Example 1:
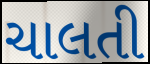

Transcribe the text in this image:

ચાલતી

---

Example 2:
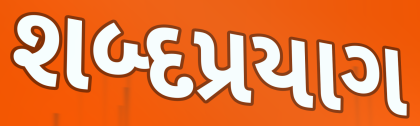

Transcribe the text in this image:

શબ્દપ્રયાગ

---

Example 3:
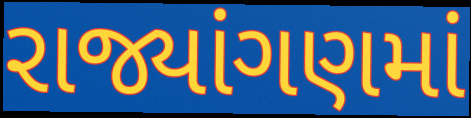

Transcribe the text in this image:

રાજ્યાંગણમાં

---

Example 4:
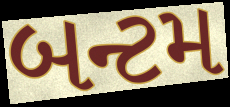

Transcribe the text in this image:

બન્ટમ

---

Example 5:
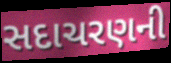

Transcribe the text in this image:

સદાચરણની